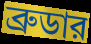
ব্রুডার